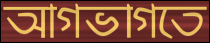
আগভাগতে